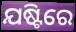
ଯଷ୍ଟିରେ